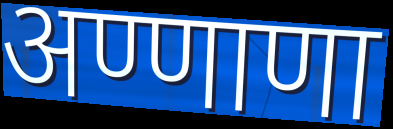
अण्णाणा